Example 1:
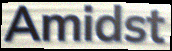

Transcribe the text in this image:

Amidst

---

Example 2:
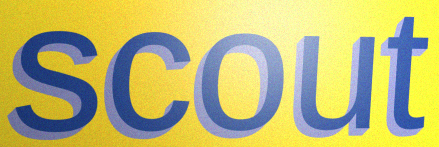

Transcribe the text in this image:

scout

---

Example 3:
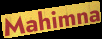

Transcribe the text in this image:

Mahimna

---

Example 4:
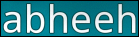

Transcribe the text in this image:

abheeh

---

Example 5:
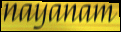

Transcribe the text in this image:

nayanam